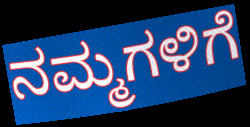
ನಮ್ಮಗಳಿಗೆ